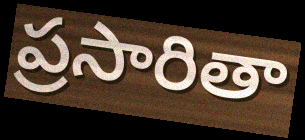
ప్రసారితా